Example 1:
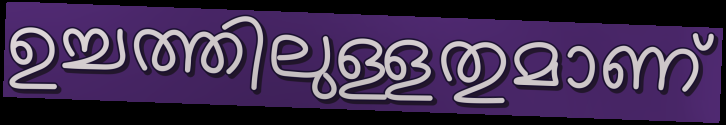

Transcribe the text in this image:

ഉച്ചത്തിലുള്ളതുമാണ്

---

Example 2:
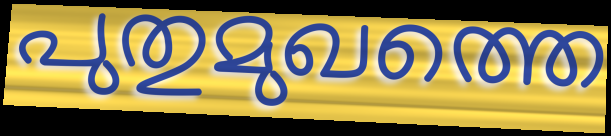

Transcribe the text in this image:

പുതുമുഖത്തെ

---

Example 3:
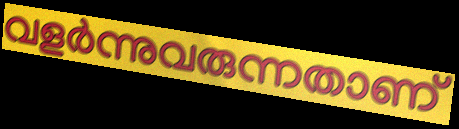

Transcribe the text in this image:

വളർന്നുവരുന്നതാണ്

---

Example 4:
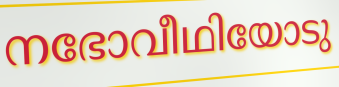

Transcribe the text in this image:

നഭോവീഥിയോടു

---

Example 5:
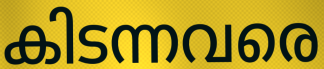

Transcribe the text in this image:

കിടന്നവരെ